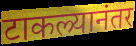
टाकल्यानंतर